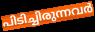
പിടിച്ചിരുന്നവർ